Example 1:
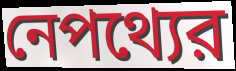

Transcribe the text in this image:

নেপথ্যের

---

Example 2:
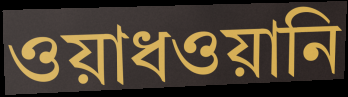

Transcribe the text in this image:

ওয়াধওয়ানি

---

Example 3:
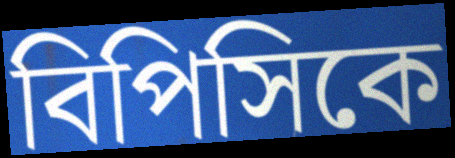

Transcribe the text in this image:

বিপিসিকে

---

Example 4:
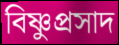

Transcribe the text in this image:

বিষ্ণুপ্রসাদ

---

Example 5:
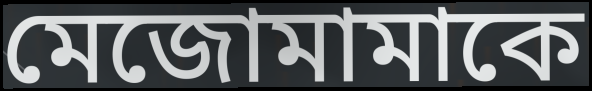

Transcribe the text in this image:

মেজোমামাকে